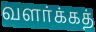
வளர்க்கத்